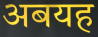
अबयह